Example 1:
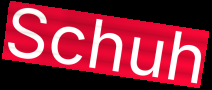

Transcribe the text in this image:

Schuh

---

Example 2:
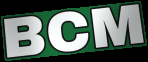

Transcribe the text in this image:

BCM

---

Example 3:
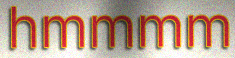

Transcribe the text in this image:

hmmmm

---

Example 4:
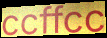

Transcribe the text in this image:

ccffcc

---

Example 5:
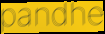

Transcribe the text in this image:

pandhe